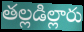
తల్లడిల్లారు